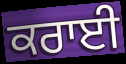
ਕਰਾਈ